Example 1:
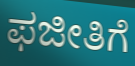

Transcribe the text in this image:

ಫಜೀತಿಗೆ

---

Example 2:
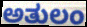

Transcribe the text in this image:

ಅತುಲಂ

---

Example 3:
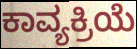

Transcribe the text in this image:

ಕಾವ್ಯಕ್ರಿಯೆ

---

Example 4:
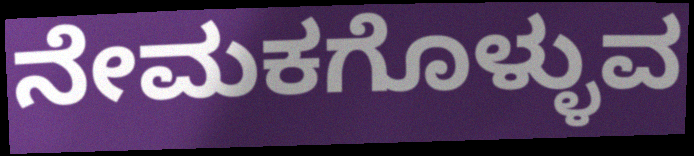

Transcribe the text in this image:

ನೇಮಕಗೊಳ್ಳುವ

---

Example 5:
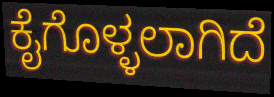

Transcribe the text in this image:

ಕೈಗೊಳ್ಳಲಾಗಿದೆ